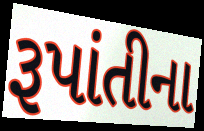
રૂપાંતીના